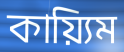
কায়্যিম